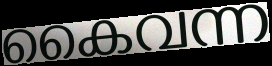
കൈവന്ന